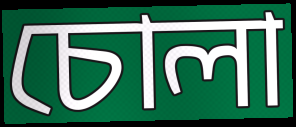
চোলা